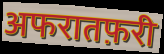
अफरातफ़री